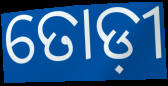
ତୋଡ଼ୀ